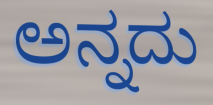
ಅನ್ನದು